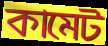
কামেট